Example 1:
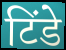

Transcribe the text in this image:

टिंडे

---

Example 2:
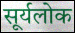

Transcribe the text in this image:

सूर्यलोक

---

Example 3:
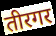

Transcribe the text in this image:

तीरगर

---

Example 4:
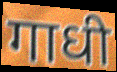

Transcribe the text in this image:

गाधी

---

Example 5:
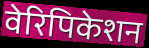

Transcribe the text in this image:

वेरिपिकेशन